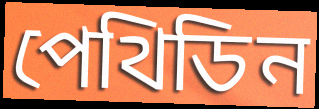
পেথিডিন